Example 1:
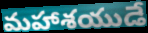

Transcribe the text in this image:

మహాశయుడే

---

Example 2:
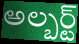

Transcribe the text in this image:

అల్బర్ట్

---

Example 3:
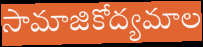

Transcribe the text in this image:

సామాజికోద్యమాల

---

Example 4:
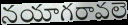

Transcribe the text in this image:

నయాగరావలె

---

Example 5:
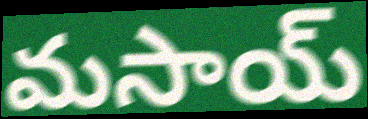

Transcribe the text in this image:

మసాయ్